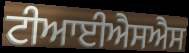
ਟੀਆਈਐਸਐਸ